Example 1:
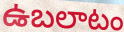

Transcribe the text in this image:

ఉబలాటం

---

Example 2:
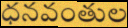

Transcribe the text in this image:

ధనవంతుల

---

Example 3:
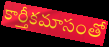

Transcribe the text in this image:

కార్తీకమాసంతో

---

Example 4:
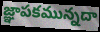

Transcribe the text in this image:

జ్ఞాపకమున్నదా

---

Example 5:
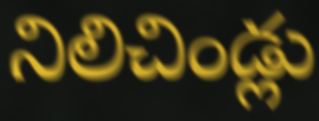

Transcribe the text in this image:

నిలిచిండ్లు